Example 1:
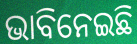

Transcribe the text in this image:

ଭାବିନେଇଛି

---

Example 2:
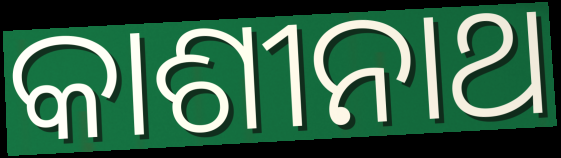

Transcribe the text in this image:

କାଶୀନାଥ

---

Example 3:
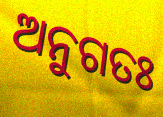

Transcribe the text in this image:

ଅନୁଗତଃ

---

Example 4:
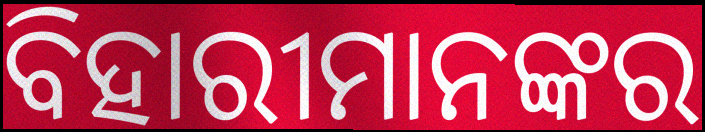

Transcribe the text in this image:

ବିହାରୀମାନଙ୍କର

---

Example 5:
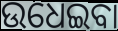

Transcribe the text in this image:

ଉଧେଇବା